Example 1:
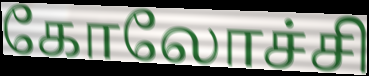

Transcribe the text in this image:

கோலோச்சி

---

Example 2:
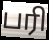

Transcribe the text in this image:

பரி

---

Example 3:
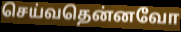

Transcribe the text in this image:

செய்வதென்னவோ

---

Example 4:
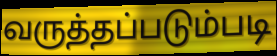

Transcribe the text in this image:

வருத்தப்படும்படி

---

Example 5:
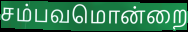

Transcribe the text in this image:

சம்பவமொன்றை